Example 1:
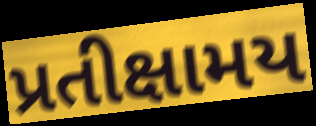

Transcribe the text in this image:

પ્રતીક્ષામય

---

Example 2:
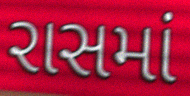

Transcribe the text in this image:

રાસમાં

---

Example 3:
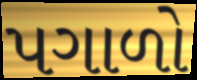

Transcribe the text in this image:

પગાળો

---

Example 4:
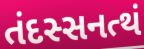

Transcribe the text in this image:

તંદસ્સનત્થં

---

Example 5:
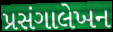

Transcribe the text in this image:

પ્રસંગાલેખન